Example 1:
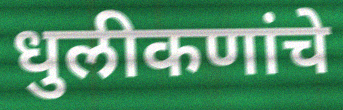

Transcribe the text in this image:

धुलीकणांचे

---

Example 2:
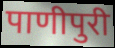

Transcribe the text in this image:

पाणीपुरी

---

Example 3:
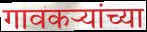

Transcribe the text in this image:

गावकर्‍यांच्या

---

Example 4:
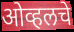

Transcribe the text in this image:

ओव्हलचे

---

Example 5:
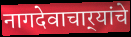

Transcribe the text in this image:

नागदेवाचार्यांचे